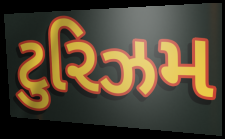
ટુરિઝમ